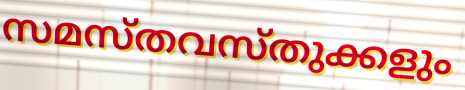
സമസ്തവസ്തുക്കളും